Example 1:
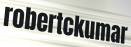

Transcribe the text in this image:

robertckumar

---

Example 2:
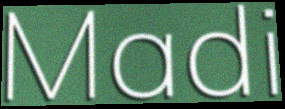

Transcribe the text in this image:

Madi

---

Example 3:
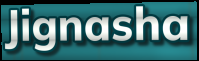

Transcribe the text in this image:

Jignasha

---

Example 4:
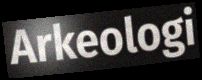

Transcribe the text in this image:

Arkeologi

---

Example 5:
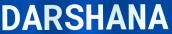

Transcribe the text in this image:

DARSHANA